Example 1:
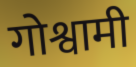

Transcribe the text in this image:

गोश्वामी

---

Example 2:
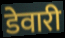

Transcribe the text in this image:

डेवारी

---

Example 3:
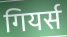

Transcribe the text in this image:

गियर्स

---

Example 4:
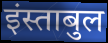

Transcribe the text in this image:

इंस्ताबुल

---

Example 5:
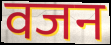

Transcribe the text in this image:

वजन